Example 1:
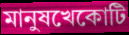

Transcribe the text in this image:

মানুষখেকোটি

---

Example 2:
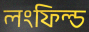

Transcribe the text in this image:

লংফিল্ড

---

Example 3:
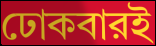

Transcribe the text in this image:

ঢোকবারই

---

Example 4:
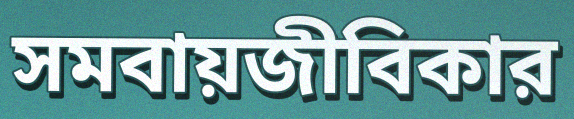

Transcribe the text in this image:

সমবায়জীবিকার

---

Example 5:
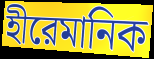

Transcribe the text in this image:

হীরেমানিক